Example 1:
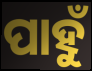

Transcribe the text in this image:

ପାହୁଁ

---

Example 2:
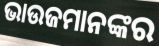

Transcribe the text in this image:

ଭାଉଜମାନଙ୍କର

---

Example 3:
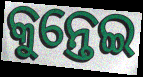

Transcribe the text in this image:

କୁନ୍ତେଇ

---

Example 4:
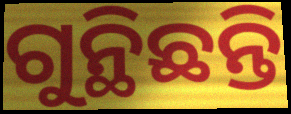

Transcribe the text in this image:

ଗୁନ୍ଥିଛନ୍ତି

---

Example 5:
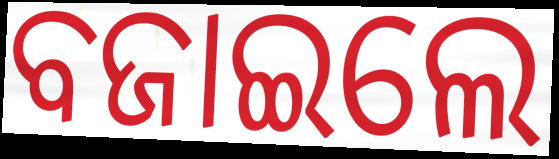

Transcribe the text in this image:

ବଜାଇଲେ